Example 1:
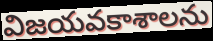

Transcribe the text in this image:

విజయవకాశాలను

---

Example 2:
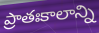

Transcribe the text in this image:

ప్రాతఃకాలాన్ని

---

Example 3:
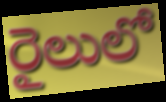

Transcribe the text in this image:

రైలులో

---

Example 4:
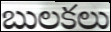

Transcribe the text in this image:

బులకలు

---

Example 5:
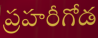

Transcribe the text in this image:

ప్రహరీగోడ